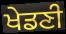
ਖੇਡਣੀ